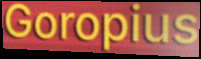
Goropius